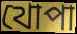
থোপা